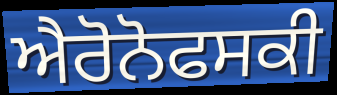
ਐਰੋਨੋਫਸਕੀ